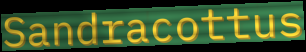
Sandracottus